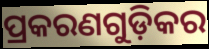
ପ୍ରକରଣଗୁଡ଼ିକର